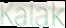
Kalak